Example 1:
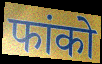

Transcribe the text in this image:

फांको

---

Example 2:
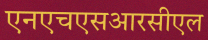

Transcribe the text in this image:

एनएचएसआरसीएल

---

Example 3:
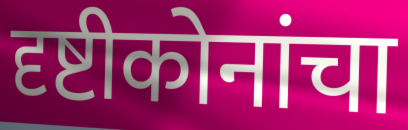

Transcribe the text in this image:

दृष्टीकोनांचा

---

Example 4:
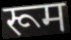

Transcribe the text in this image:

रूम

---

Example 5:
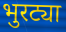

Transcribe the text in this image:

भुरट्या